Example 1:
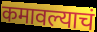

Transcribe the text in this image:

कमावल्याचं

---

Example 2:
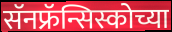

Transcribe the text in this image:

सॅनफ्रॅन्सिस्कोच्या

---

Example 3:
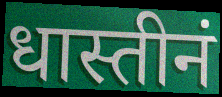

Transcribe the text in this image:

धास्तीनं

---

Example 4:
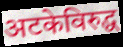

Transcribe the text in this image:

अटकेविरुद्ध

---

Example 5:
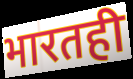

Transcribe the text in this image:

भारतही